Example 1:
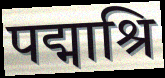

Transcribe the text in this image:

पद्माश्रि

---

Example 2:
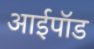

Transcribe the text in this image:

आईपॉड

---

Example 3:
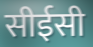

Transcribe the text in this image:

सीईसी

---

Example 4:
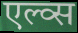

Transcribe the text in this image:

एल्व्स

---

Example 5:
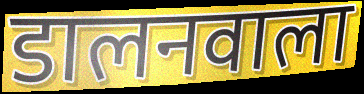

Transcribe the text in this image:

डालनवाला